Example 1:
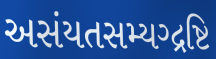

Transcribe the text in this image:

અસંયતસમ્યગ્દ્રષ્ટિ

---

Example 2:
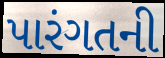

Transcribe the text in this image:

પારંગતની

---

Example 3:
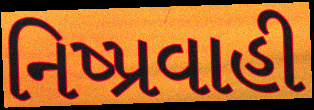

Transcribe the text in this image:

નિષ્પ્રવાહી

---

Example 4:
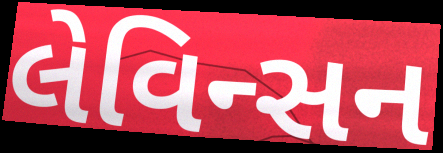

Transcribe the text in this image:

લેવિન્સન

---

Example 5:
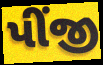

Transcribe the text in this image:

પીંજી